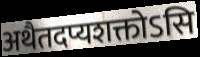
अथैतदप्यशक्तोऽसि